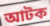
আটক